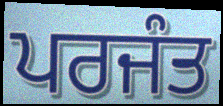
ਪਰਜੰਤ